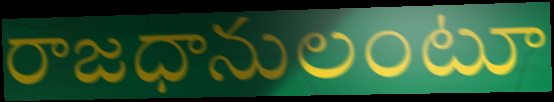
రాజధానులంటూ